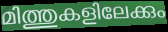
മിത്തുകളിലേക്കും